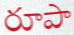
రూపా